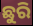
ଛୁରି